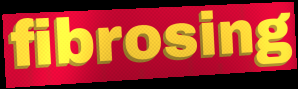
fibrosing